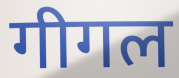
गीगल